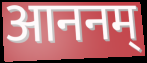
आननम्